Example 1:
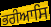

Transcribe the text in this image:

ਭਰੀਆਸਿ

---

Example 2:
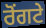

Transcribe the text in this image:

ਰੋੰਗਟੇ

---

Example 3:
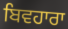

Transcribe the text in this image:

ਬਿਵਹਾਰਾ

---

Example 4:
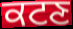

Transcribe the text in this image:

ਕਟਣ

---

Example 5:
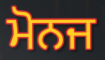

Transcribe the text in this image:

ਮੋਨਜ